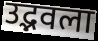
उद्भवला